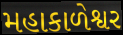
મહાકાળેશ્વર